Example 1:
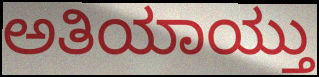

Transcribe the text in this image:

ಅತಿಯಾಯ್ತು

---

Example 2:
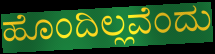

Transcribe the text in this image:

ಹೊಂದಿಲ್ಲವೆಂದು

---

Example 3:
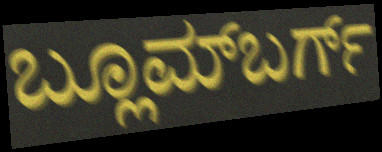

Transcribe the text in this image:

ಬ್ಲೂಮ್‌ಬರ್ಗ್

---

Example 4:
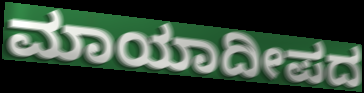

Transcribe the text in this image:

ಮಾಯಾದೀಪದ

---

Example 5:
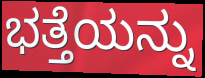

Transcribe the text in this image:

ಭತ್ತೆಯನ್ನು